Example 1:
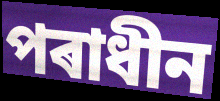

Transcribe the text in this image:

পৰাধীন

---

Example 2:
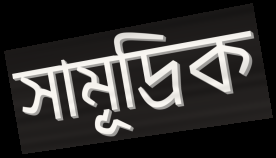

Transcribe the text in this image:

সামূদ্ৰিক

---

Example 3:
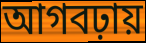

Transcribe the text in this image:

আগবঢ়ায়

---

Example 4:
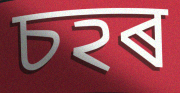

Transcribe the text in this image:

চহৰ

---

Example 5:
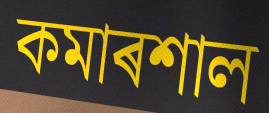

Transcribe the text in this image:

কমাৰশাল